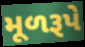
મૂળરૂપે